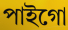
পাইগো